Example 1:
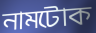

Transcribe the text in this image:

নামটোক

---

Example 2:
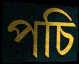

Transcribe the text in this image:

পচি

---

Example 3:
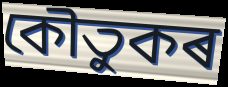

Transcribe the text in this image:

কৌতুকৰ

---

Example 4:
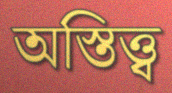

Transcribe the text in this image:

অস্তিত্ত্ব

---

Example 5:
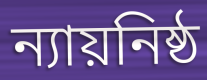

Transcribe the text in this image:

ন্যায়নিষ্ঠ